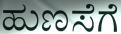
ಹುಣಸೆಗೆ